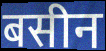
बसीन